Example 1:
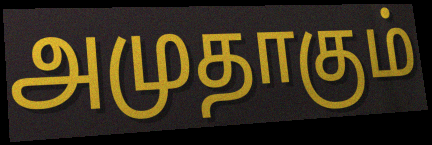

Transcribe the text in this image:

அமுதாகும்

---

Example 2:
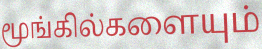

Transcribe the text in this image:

மூங்கில்களையும்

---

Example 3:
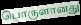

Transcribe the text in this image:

பொருளானது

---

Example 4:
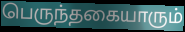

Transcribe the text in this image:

பெருந்தகையாரும்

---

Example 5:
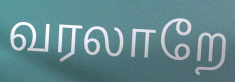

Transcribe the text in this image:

வரலாறே